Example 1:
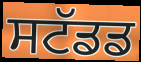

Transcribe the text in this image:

ਸਟੱਡਡ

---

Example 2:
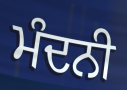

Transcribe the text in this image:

ਮੰਦਨੀ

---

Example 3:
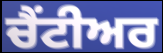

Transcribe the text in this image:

ਚੈਂਟੀਅਰ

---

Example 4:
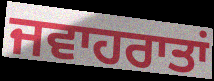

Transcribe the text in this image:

ਜਵਾਹਰਾਤਾਂ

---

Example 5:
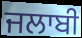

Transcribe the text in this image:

ਜਲਾਬੀ